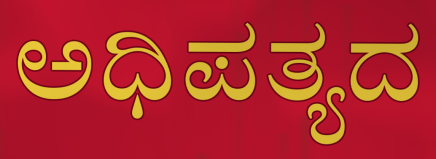
ಅಧಿಪತ್ಯದ